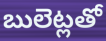
బులెట్లతో